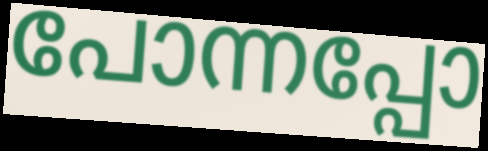
പോന്നപ്പോ